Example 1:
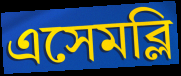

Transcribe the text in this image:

এসেমব্লি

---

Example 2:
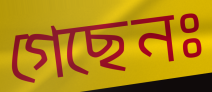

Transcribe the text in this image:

গেছেনঃ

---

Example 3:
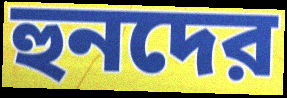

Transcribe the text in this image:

হুনদের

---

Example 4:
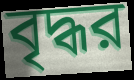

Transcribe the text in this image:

বৃদ্ধর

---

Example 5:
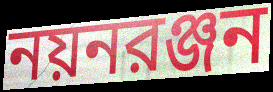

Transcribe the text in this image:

নয়নরঞ্জন